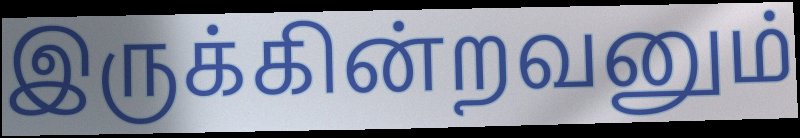
இருக்கின்றவனும்